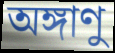
অঙ্গাণু